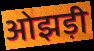
ओझड़ी